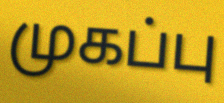
முகப்பு